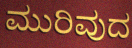
ಮುರಿವುದ